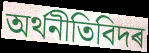
অৰ্থনীতিবিদৰ